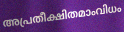
അപ്രതീക്ഷിതമാംവിധം